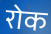
रोक